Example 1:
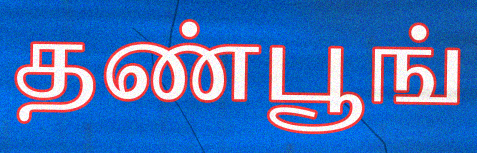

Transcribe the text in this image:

தண்பூங்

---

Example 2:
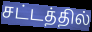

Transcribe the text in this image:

சட்டத்தில்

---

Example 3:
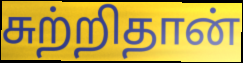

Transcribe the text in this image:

சுற்றிதான்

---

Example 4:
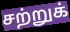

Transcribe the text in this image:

சற்றுக்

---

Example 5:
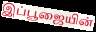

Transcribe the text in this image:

இப்பூஜையின்